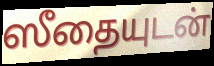
ஸீதையுடன்